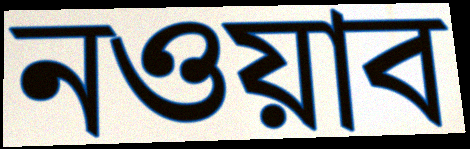
নওয়াব